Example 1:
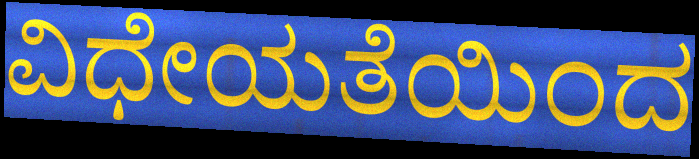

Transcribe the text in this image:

ವಿಧೇಯತೆಯಿಂದ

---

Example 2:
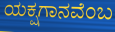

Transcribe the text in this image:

ಯಕ್ಷಗಾನವೆಂಬ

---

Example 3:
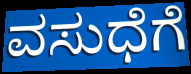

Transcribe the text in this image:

ವಸುಧೆಗೆ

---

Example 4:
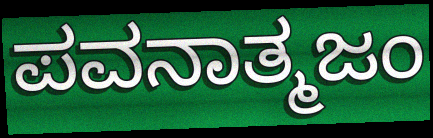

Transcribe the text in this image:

ಪವನಾತ್ಮಜಂ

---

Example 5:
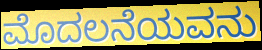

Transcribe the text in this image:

ಮೊದಲನೆಯವನು